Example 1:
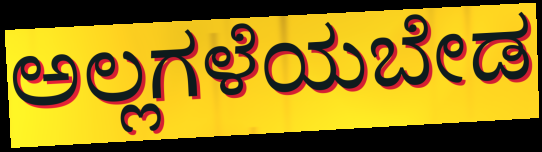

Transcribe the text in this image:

ಅಲ್ಲಗಳೆಯಬೇಡ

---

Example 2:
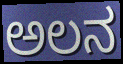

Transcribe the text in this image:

ಅಲನ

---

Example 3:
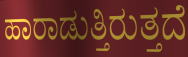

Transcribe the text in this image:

ಹಾರಾಡುತ್ತಿರುತ್ತದೆ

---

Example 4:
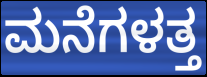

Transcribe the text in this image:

ಮನೆಗಳತ್ತ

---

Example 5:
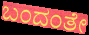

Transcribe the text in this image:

ಬಂದಂತೇ